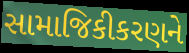
સામાજિકીકરણને